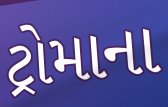
ટ્રોમાના